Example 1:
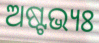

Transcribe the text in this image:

ଅଷ୍ଟଭ୍ୟଃ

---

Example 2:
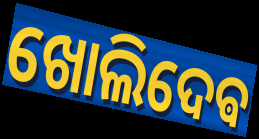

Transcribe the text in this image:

ଖୋଲିଦେଵ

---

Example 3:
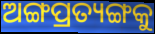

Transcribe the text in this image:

ଅଙ୍ଗପ୍ରତ୍ୟଙ୍ଗକୁ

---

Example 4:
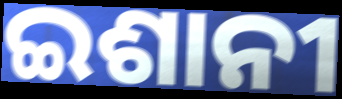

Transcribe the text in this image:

ଇଶାନୀ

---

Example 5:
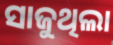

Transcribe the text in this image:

ସାଜୁଥିଲା